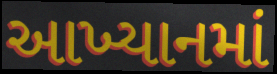
આખ્યાનમાં